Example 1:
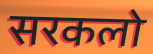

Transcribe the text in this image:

सरकलो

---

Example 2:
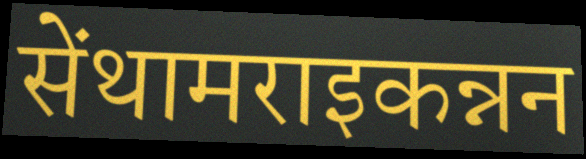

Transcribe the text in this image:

सेंथामराइकन्नन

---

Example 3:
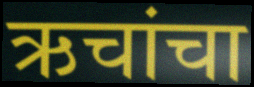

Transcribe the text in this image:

ऋचांचा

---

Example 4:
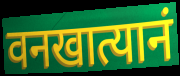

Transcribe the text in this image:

वनखात्यानं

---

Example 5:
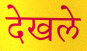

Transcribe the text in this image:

देखले